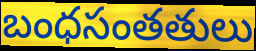
బంధసంతతులు